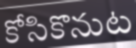
కోసికొనుట